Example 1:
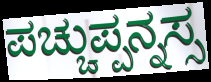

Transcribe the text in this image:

ಪಚ್ಚುಪ್ಪನ್ನಸ್ಸ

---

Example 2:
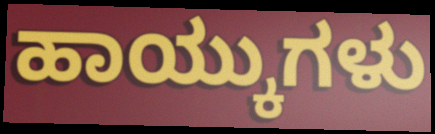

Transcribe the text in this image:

ಹಾಯ್ಕುಗಳು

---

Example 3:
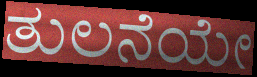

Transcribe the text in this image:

ತುಲನೆಯೇ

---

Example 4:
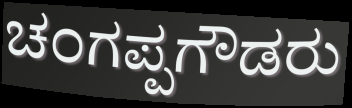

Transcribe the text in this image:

ಚಂಗಪ್ಪಗೌಡರು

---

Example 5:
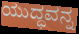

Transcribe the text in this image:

ಯುದ್ಧವನ್ನ